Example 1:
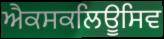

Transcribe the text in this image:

ਐਕਸਕਲਿਊਸਿਵ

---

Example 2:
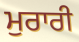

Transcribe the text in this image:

ਮੁਰਾਰੀ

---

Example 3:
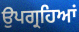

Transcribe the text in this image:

ਉਪਗ੍ਰਹਿਆਂ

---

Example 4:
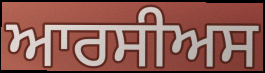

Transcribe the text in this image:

ਆਰਸੀਅਸ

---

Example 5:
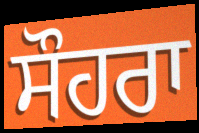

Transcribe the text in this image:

ਸੌਹਰਾ